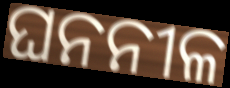
ଘନନୀଳ